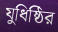
যুধিষ্ঠির